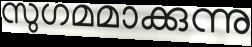
സുഗമമാക്കുന്നു